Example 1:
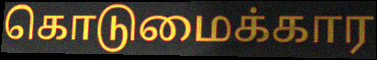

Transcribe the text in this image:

கொடுமைக்கார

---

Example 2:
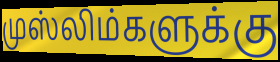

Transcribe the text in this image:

முஸ்லிம்களுக்கு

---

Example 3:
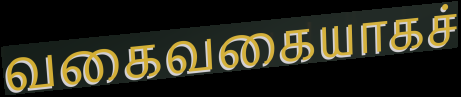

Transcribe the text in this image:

வகைவகையாகச்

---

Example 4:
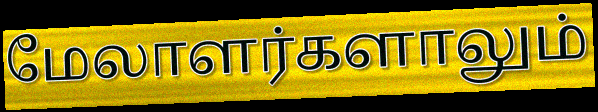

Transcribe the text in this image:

மேலாளர்களாலும்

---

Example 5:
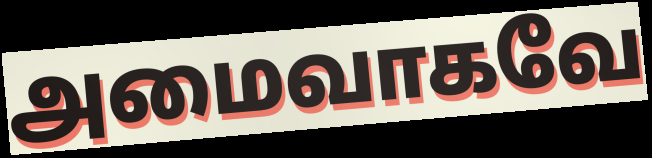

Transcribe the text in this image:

அமைவாகவே